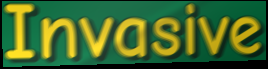
Invasive